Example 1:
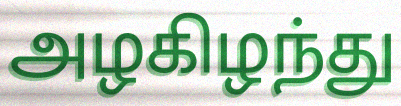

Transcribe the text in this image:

அழகிழந்து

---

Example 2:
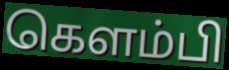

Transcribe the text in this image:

கெளம்பி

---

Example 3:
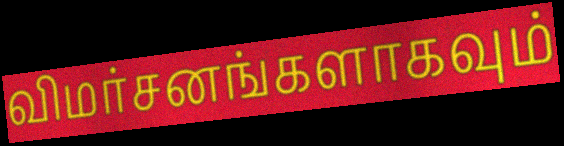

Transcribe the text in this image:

விமர்சனங்களாகவும்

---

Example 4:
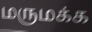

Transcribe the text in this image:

மருமக்க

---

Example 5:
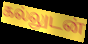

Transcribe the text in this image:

கல்லுடன்